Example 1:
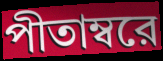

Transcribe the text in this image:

পীতাম্বরে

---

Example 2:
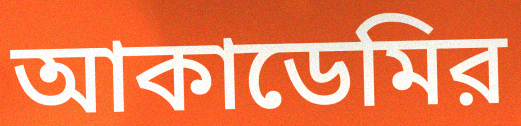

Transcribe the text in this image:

আকাডেমির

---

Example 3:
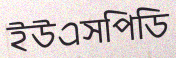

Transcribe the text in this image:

ইউএসপিডি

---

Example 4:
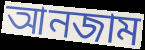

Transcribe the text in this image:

আনজাম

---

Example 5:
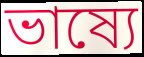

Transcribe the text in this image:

ভাষ্যে